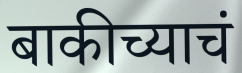
बाकीच्याचं